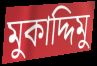
মুকাদ্দিমু